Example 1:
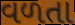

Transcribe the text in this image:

વળતા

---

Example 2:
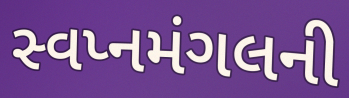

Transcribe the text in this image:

સ્વપ્નમંગલની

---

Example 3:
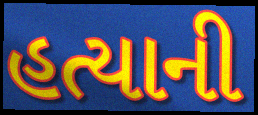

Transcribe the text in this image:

હત્યાની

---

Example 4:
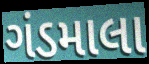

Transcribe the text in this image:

ગંડમાલા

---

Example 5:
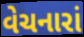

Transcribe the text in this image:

વેચનારાં